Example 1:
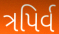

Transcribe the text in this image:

ત્રપિર્વ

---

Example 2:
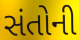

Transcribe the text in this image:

સંતોની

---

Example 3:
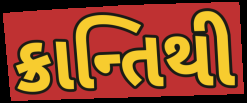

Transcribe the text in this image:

ક્રાન્તિથી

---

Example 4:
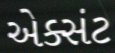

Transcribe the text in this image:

એક્સંટ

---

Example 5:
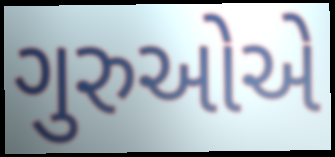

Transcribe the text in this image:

ગુરુઓએ